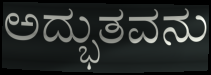
ಅದ್ಭುತವನು